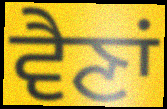
ਵੈਣਾਂ